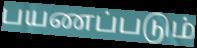
பயணப்படும்